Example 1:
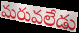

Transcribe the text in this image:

మరువలేడు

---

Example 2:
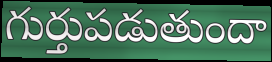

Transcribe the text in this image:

గుర్తుపడుతుందా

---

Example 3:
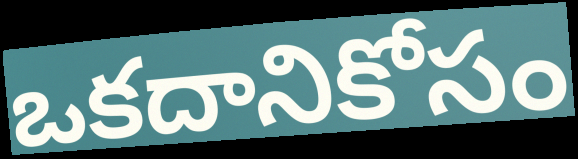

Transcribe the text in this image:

ఒకదానికోసం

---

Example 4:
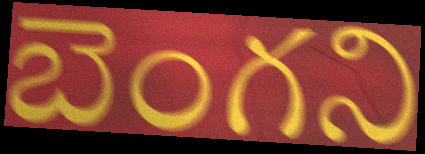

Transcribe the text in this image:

బెంగని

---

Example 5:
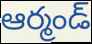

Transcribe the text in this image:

ఆర్మండ్